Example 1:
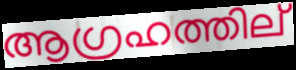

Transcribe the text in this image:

ആഗ്രഹത്തില്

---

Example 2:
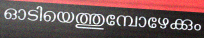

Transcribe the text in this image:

ഓടിയെത്തുമ്പോഴേക്കും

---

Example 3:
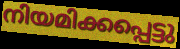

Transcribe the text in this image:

നിയമിക്കപ്പെട്ടു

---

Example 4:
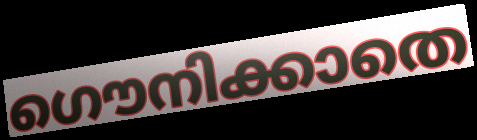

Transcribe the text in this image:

ഗൌനിക്കാതെ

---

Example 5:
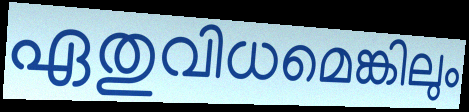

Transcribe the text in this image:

ഏതുവിധമെങ്കിലും